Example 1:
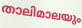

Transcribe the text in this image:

താലിമാലയും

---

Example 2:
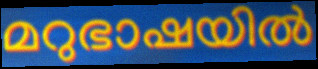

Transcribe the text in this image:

മറുഭാഷയിൽ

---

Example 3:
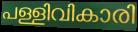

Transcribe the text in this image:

പള്ളിവികാരി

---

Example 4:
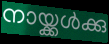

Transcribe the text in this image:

നായ്ക്കൾക്കു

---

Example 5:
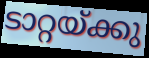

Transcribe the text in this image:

ടാറ്റയ്ക്കു